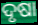
ଦୃଷା